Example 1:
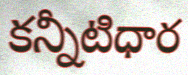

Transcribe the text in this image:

కన్నీటిధార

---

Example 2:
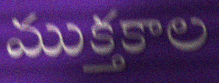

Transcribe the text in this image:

ముక్తకాల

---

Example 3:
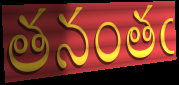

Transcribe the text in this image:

తనంతఁ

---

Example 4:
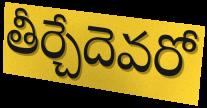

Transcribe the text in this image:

తీర్చేదెవరో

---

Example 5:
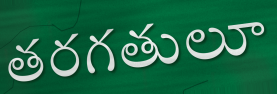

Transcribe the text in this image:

తరగతులూ